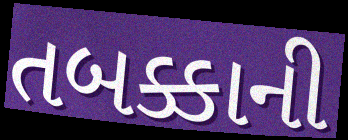
તબક્કાની